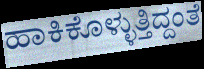
ಹಾಕಿಕೊಳ್ಳುತ್ತಿದ್ದಂತೆ